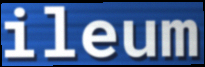
ileum